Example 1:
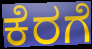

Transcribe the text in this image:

ಕೆರಗೆ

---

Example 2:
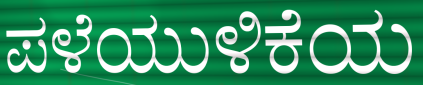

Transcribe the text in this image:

ಪಳೆಯುಳಿಕೆಯ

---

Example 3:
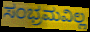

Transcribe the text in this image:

ಸಂಭ್ರಮವಿಲ್ಲ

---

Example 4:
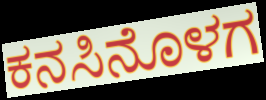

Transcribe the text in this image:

ಕನಸಿನೊಳಗ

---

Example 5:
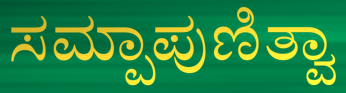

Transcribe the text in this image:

ಸಮ್ಪಾಪುಣಿತ್ವಾ